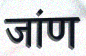
जांण